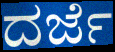
ದರ್ಜೆ